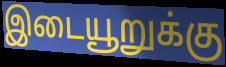
இடையூறுக்கு